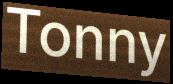
Tonny